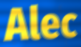
Alec